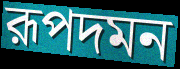
রূপদমন